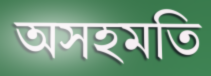
অসহমতি